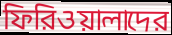
ফিরিওয়ালাদের